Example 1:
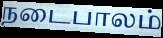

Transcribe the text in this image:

நடைபாலம்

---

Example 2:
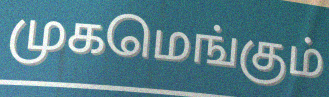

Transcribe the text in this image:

முகமெங்கும்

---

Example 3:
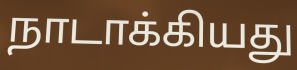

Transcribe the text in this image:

நாடாக்கியது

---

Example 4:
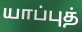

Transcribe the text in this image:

யாப்புத்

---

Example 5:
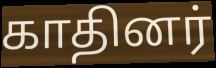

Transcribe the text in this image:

காதினர்